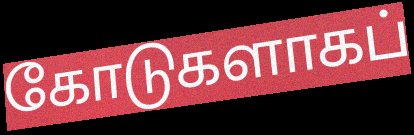
கோடுகளாகப்